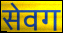
सेवग